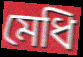
মেধি